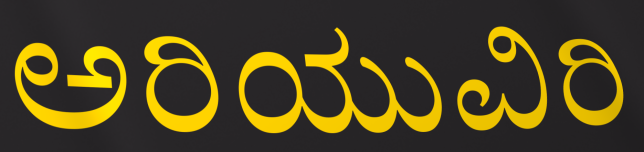
ಅರಿಯುವಿರಿ